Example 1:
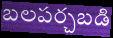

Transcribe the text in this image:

బలపర్చబడి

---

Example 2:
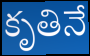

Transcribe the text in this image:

కృతినే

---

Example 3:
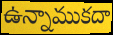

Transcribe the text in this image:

ఉన్నాముకదా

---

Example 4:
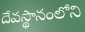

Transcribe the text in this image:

దేవస్థానంలోని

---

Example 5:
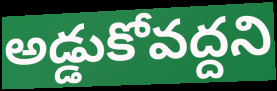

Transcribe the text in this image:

అడ్డుకోవద్దని